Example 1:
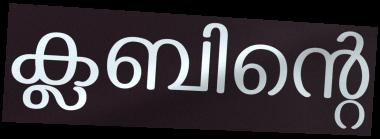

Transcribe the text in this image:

ക്ലബിന്റെ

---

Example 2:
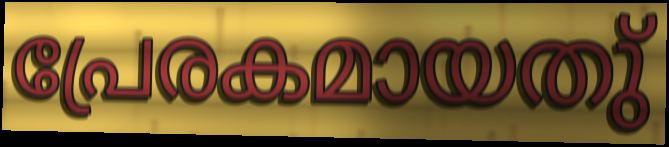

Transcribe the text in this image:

പ്രേരകമായതു്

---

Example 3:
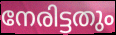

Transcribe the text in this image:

നേരിട്ടതും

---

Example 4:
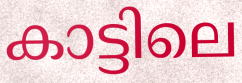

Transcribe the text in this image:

കാട്ടിലെ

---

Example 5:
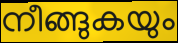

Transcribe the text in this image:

നീങ്ങുകയും